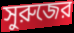
সুরুজের